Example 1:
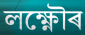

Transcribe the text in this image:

লক্ষ্ণৌৰ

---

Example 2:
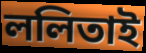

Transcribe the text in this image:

ললিতাই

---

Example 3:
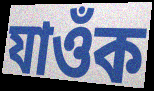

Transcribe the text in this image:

যাওঁক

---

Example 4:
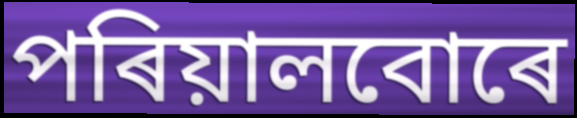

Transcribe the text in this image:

পৰিয়ালবোৰে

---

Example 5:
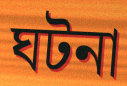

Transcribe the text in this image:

ঘটনা